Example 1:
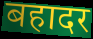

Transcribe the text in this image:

बहादर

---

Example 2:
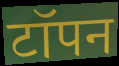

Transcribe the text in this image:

टॉपन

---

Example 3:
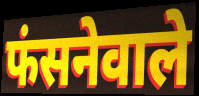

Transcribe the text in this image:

फंसनेवाले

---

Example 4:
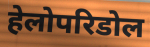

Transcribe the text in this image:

हेलोपरिडोल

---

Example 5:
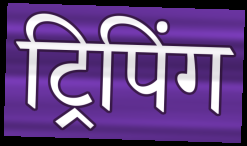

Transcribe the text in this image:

ट्रिपिंग